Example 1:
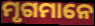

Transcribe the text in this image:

ମୃଗମାନେ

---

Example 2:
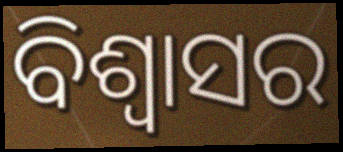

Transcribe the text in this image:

ବିଶ୍ୱାସର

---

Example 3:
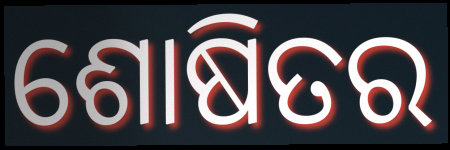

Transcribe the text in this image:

ଶୋଷିତର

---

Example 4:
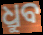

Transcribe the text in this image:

ଧ୍ରୁବ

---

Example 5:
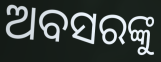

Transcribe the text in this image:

ଅବସରଙ୍କୁ